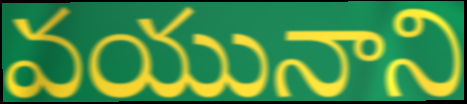
వయునాని